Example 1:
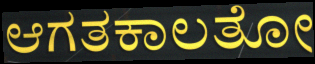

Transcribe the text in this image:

ಆಗತಕಾಲತೋ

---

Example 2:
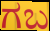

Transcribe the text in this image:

ಗಬ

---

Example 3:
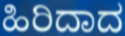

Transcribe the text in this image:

ಹಿರಿದಾದ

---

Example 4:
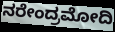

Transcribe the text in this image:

ನರೇಂದ್ರಮೋದಿ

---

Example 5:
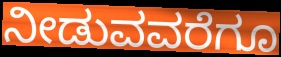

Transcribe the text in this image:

ನೀಡುವವರೆಗೂ